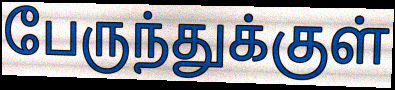
பேருந்துக்குள்